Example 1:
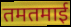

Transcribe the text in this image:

तमतमाई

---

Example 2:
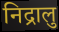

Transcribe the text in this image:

निद्रालु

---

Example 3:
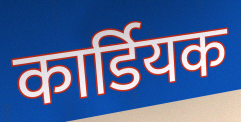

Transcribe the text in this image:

कार्डियक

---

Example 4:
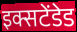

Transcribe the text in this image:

इक्सटेंडेड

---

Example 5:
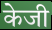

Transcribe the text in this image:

केजी